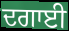
ਦਗਾਈ